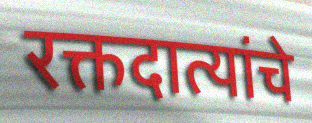
रक्तदात्यांचे